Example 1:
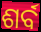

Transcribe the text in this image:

ଶର୍ବ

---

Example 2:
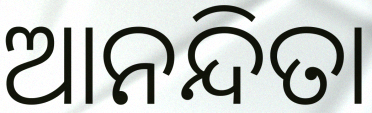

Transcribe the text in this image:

ଆନନ୍ଦିତା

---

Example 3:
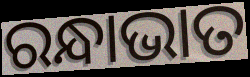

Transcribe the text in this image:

ରନ୍ଧାଭାତ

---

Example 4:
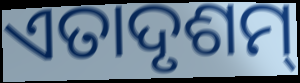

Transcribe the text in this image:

ଏତାଦୃଶମ୍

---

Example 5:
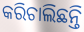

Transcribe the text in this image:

କରିଚାଲିଛନ୍ତି